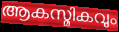
ആകസ്മികവും